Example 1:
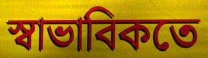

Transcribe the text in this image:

স্বাভাবিকতে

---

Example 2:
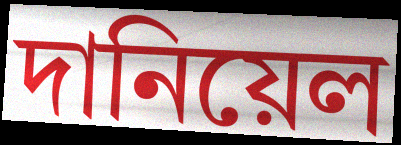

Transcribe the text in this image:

দানিয়েল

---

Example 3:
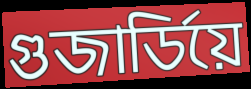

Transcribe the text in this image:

গুজাৰ্ডিয়ে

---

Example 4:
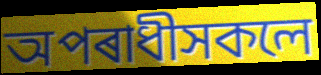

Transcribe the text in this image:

অপৰাধীসকলে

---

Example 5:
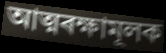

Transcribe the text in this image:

আত্মৰক্ষামূলক